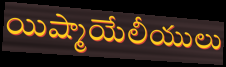
యిష్మాయేలీయులు